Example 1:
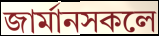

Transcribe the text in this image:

জাৰ্মানসকলে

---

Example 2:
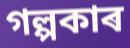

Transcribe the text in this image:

গল্পকাৰ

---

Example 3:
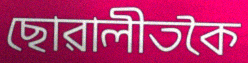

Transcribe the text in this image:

ছোৱালীতকৈ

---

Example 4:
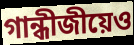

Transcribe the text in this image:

গান্ধীজীয়েও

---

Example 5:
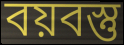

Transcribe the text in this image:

বয়বস্তু